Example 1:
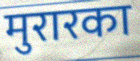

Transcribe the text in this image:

मुरारका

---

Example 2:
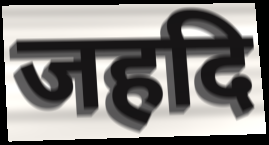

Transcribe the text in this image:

जहदि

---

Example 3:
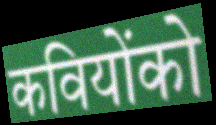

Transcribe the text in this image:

कवियोंको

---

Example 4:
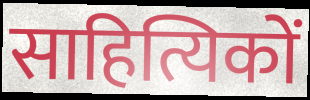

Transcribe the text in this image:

साहित्यिकों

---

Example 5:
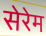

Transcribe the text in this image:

सेरेम